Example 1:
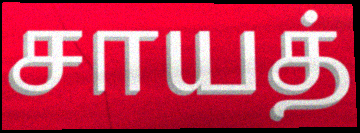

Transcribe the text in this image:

சாயத்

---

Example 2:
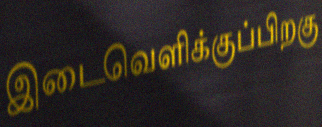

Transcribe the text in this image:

இடைவெளிக்குப்பிறகு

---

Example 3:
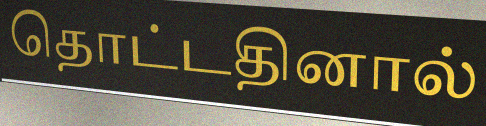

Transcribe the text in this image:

தொட்டதினால்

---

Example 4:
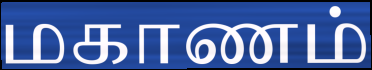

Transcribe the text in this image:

மகாணம்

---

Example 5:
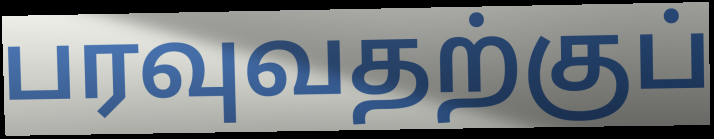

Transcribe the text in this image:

பரவுவதற்குப்